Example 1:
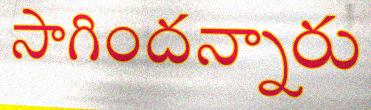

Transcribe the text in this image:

సాగిందన్నారు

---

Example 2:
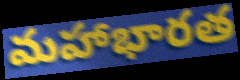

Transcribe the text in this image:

మహాభారత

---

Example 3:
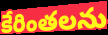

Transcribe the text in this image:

కేరింతలను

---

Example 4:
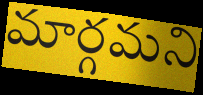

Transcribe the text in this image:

మార్గమని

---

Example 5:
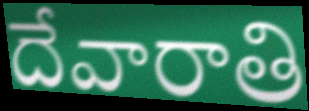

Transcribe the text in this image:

దేవారాతి